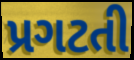
પ્રગટતી